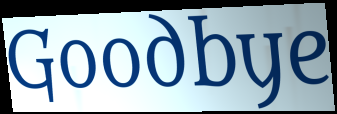
Goodbye